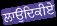
ਲਾਉਦਿਕੀਏ